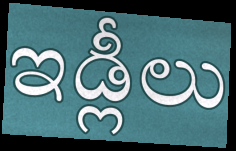
ఇడ్లీలు